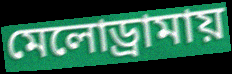
মেলোড্রামায়